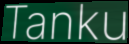
Tanku